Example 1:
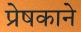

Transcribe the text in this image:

प्रेषकाने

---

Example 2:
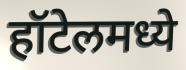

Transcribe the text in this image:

हॉटेलमध्ये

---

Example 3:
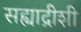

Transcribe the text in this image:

सह्याद्रीशी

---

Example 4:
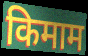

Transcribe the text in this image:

किमाम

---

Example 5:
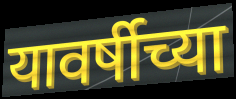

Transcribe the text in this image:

यावर्षीच्या